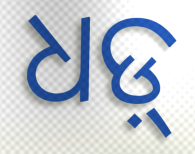
ଧଡ଼୍